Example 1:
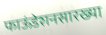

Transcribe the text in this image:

फाऊंडेशनसारख्या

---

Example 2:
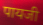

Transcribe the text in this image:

पायजी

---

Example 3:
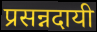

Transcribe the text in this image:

प्रसन्नदायी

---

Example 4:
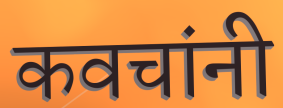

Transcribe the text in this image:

कवचांनी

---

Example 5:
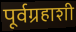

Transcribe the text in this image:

पूर्वग्रहाशी